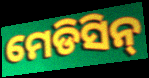
ମେଡିସିନ୍